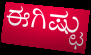
ಈಗಿಷ್ಟು